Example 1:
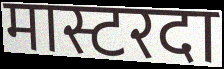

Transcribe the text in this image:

मास्टरदा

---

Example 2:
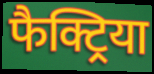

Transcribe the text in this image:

फैक्ट्रिया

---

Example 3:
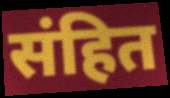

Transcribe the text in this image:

संहित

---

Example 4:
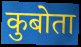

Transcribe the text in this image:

कुबोता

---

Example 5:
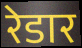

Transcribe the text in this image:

रेडार